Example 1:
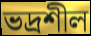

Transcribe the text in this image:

ভদ্রশীল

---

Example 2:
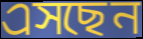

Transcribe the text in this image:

এসছেন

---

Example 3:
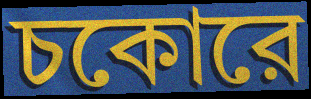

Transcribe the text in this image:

চকোরে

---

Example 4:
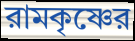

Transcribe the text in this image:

রামকৃষ্ণের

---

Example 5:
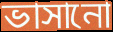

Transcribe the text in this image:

ভাসানো